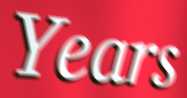
Years